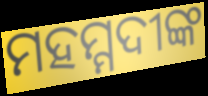
ମହମ୍ମଦୀଙ୍କ